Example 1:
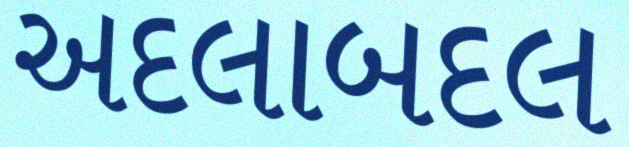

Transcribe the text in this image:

અદલાબદલ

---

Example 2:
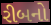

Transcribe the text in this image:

રીબનો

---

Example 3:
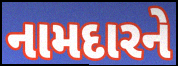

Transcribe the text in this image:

નામદારને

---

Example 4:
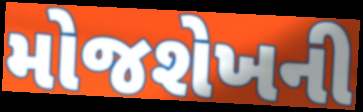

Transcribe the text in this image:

મોજશેખની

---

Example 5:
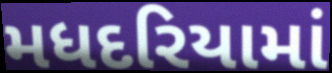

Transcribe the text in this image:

મધદરિયામાં